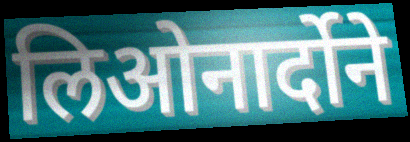
लिओनार्दोने